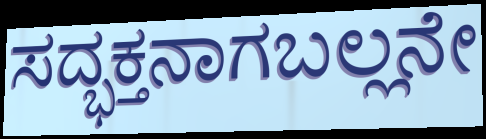
ಸದ್ಭಕ್ತನಾಗಬಲ್ಲನೇ